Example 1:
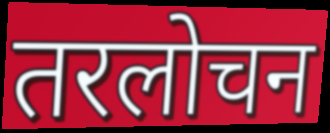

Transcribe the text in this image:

तरलोचन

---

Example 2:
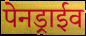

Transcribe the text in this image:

पेनड्राईव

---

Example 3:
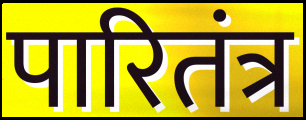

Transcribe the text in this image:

पारितंत्र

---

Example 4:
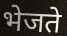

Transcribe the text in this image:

भेजते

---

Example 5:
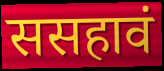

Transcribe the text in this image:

ससहावं